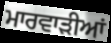
ਮਾਰਵਾੜੀਆਂ